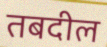
तबदील